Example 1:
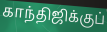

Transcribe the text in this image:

காந்திஜிக்குப்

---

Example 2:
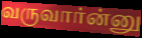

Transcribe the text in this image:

வருவார்ன்னு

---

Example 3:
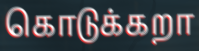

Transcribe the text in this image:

கொடுக்கறா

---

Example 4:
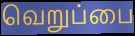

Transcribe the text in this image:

வெறுப்பை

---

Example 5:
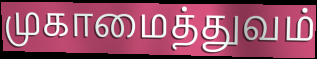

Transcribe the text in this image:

முகாமைத்துவம்